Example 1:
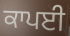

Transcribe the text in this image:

ਕਾਪਈ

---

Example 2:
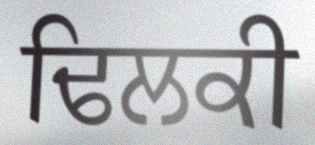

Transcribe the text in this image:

ਢਿਲਕੀ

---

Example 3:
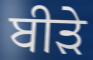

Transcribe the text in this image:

ਬੀੜੇ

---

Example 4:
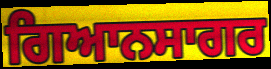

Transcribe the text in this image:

ਗਿਆਨਸਾਗਰ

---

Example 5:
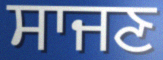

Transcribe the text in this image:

ਸਾਜਣ